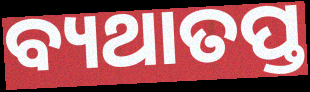
ବ୍ୟଥାତପ୍ତ